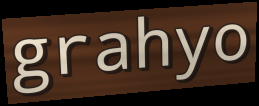
grahyo